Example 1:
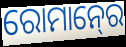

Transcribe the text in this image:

ରୋମାନ୍‍ରେ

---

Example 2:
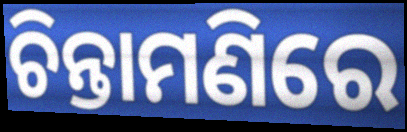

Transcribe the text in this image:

ଚିନ୍ତାମଣିରେ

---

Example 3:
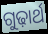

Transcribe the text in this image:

ଗୁଢ଼ାର୍ଥ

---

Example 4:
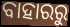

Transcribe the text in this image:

ବାହାରରୁ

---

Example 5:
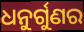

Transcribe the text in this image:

ଧନୁର୍ଗୁଣର